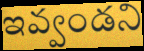
ఇవ్వండని